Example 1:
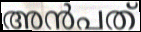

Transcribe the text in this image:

അൻപത്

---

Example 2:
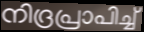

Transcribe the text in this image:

നിദ്രപ്രാപിച്ച്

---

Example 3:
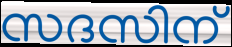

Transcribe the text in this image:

സദസിന്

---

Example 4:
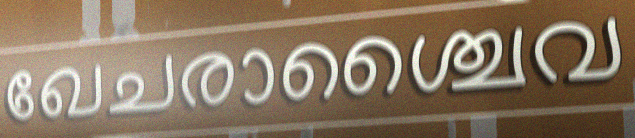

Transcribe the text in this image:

ഖേചരാശ്ചൈവ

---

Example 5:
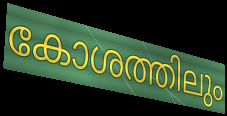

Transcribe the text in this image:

കോശത്തിലും